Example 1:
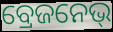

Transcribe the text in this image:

ବ୍ରେଜନେଭ୍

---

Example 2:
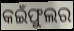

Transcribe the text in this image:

କଇଁଫୁଲର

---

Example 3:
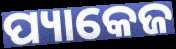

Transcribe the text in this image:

ପ୍ୟାକେଜ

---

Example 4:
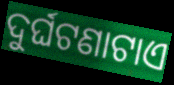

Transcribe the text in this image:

ଦୁର୍ଘଟଣାଟାଏ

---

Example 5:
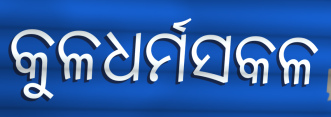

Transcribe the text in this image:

କୁଳଧର୍ମସକଳ